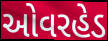
ઓવરહેડ